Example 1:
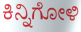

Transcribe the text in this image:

ಕಿನ್ನಿಗೋಳಿ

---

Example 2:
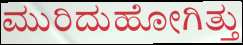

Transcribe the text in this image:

ಮುರಿದುಹೋಗಿತ್ತು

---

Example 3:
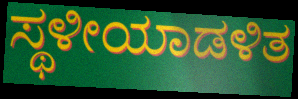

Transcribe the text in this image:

ಸ್ಥಳೀಯಾಡಳಿತ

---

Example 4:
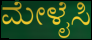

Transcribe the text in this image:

ಮೇಳೈಸಿ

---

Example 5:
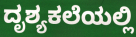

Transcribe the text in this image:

ದೃಶ್ಯಕಲೆಯಲ್ಲಿ